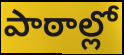
పాఠాల్లో